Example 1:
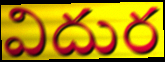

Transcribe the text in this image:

విదుర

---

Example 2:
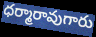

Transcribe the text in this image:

ధర్మారావుగారు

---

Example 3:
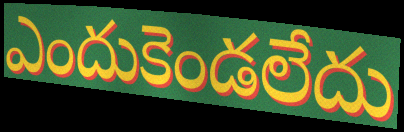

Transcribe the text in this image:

ఎందుకెండలేదు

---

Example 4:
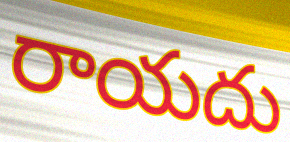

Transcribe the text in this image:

రాయదు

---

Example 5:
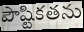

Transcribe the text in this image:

పౌష్టికతను